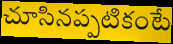
చూసినప్పటికంటే